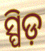
ସ୍ପିଡ଼